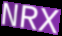
NRX